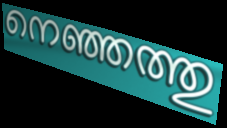
നെഞ്ഞത്തു